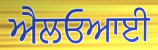
ਐਲਓਆਈ